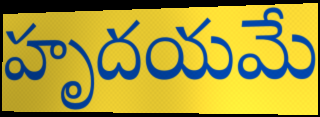
హృదయమే